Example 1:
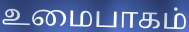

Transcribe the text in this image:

உமைபாகம்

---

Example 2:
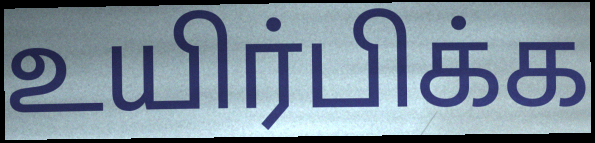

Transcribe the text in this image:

உயிர்பிக்க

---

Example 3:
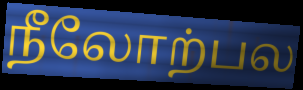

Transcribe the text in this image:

நீலோற்பல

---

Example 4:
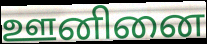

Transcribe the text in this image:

ஊனினை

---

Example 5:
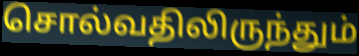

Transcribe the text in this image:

சொல்வதிலிருந்தும்